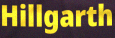
Hillgarth